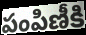
పంపిణీకి